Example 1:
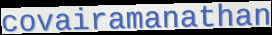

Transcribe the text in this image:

covairamanathan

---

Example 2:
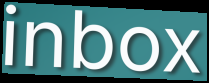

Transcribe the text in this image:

inbox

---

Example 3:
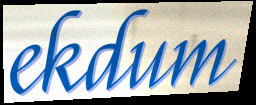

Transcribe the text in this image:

ekdum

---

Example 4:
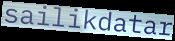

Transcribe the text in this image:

sailikdatar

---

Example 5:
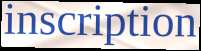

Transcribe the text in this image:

inscription